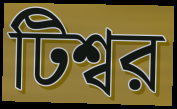
টিশ্বর